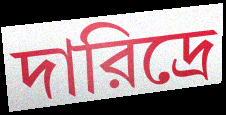
দারিদ্রে